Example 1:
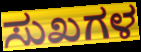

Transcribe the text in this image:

ಸುಖಗಳ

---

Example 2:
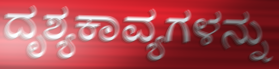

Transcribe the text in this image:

ದೃಶ್ಯಕಾವ್ಯಗಳನ್ನು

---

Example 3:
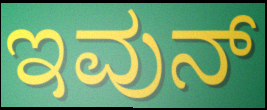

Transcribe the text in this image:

ಇವುನ್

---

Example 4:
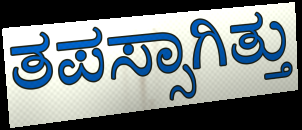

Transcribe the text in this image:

ತಪಸ್ಸಾಗಿತ್ತು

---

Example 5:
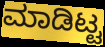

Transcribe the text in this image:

ಮಾಡಿಟ್ಟ